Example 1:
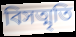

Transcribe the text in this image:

বিসত্মৃতি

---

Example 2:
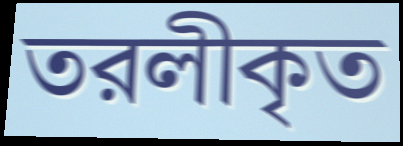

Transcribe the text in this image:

তরলীকৃত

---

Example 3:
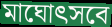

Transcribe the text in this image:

মাঘোৎসবে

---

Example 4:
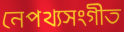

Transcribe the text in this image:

নেপথ্যসংগীত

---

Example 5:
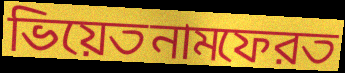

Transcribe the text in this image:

ভিয়েতনামফেরত